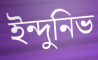
ইন্দুনিভ